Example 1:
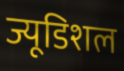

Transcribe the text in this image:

ज्यूडिशल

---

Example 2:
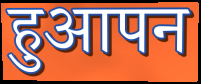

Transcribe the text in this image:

हुआपन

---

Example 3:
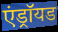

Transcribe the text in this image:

एंड्रॉयड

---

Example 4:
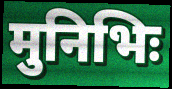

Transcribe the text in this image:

मुनिभिः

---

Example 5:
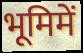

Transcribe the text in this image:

भूमिमें